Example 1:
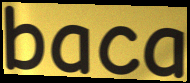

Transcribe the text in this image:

baca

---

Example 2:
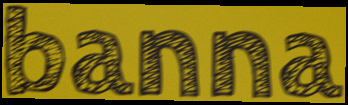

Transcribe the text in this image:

banna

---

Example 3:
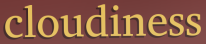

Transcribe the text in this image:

cloudiness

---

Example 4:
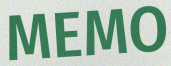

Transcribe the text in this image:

MEMO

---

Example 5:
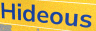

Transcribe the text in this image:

Hideous